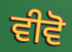
ਵੀਵੋ